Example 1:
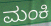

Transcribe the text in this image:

ಮಂಕಿ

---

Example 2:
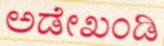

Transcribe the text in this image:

ಅಡೇಖಂಡಿ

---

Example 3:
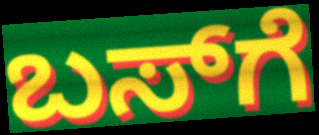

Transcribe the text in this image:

ಬಸ್‍ಗೆ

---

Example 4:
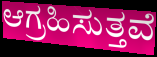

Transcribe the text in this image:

ಆಗ್ರಹಿಸುತ್ತವೆ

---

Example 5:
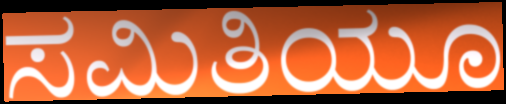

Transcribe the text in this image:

ಸಮಿತಿಯೂ